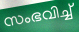
സംഭവിച്ച്